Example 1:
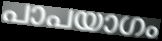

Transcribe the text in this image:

പാപയാഗം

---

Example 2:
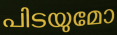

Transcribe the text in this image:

പിടയുമോ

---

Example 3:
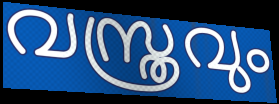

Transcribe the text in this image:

വസ്ത്രവും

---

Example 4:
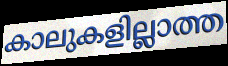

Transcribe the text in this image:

കാലുകളില്ലാത്ത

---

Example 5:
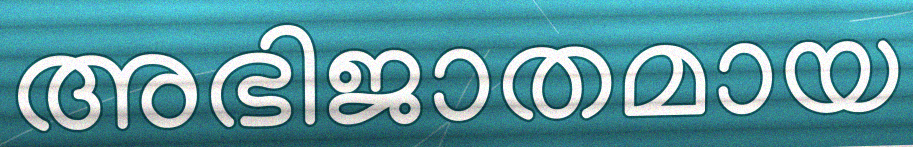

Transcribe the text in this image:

അഭിജാതമായ